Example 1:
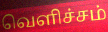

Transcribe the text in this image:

வெளிச்சம்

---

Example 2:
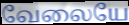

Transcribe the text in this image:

வேலையே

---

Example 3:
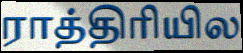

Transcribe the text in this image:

ராத்திரியில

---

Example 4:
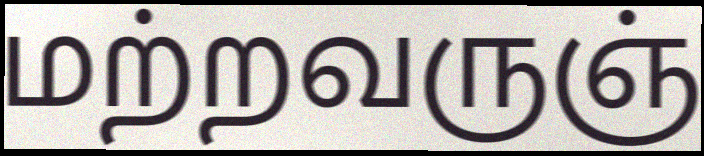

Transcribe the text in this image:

மற்றவருஞ்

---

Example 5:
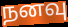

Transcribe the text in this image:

நனவு